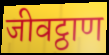
जीवट्ठाण